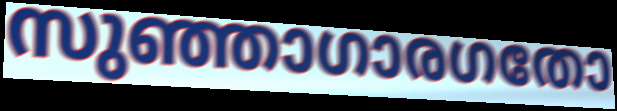
സുഞ്ഞാഗാരഗതോ